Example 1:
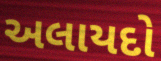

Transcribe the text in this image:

અલાયદો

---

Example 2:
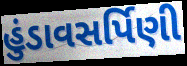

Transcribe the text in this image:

હુંડાવસર્પિણી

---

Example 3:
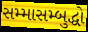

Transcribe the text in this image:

સમ્માસમ્બુદ્ધો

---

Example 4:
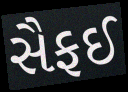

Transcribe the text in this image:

સૈફઈ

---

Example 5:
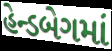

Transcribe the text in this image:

હેન્ડબેગમાં